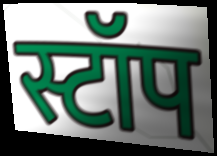
स्टॉप